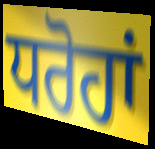
ਧਰੋਹਾਂ